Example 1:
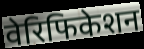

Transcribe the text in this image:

वेरिफिकेशन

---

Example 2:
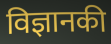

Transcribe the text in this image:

विज्ञानकी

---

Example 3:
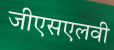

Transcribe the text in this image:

जीएसएलवी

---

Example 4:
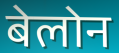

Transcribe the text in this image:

बेलोन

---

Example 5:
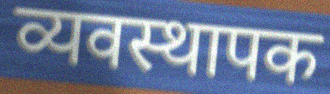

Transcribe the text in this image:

व्यवस्थापक